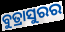
ବୁତ୍ରାସୁରର